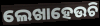
ଲେଖାହେଉଚି